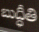
బుద్ధీతి